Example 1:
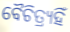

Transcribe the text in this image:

ବୈଚିତ୍ର୍ୟହିଁ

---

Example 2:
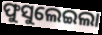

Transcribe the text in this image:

ଫୁସୁଲେଇଲା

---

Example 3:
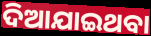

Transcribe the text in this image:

ଦିଆଯାଇଥବା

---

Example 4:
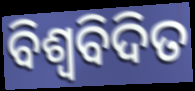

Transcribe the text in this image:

ବିଶ୍ବବିଦିତ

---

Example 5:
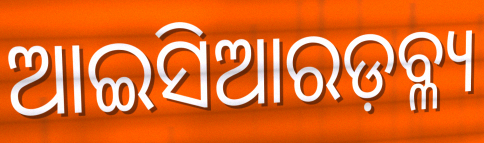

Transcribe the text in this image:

ଆଇସିଆରଡ଼ବ୍ଳ୍ୟ